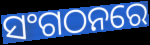
ସଂଗଠନରେ